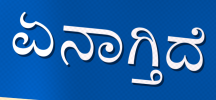
ಏನಾಗ್ತಿದೆ